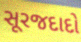
સૂરજદાદો